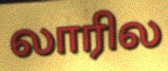
லாரில